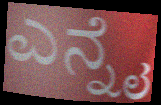
ಎನ್ನೈ